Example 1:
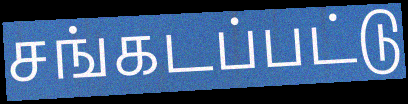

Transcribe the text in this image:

சங்கடப்பட்டு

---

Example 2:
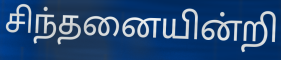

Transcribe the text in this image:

சிந்தனையின்றி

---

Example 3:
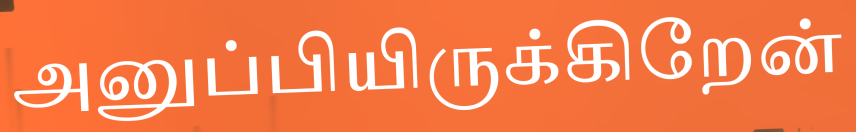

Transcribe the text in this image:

அனுப்பியிருக்கிறேன்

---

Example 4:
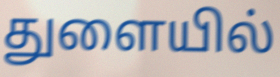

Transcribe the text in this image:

துளையில்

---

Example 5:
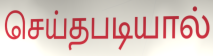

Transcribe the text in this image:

செய்தபடியால்